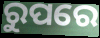
ରୁପରେ